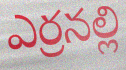
ఎర్రనల్లి